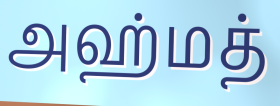
அஹ்மத்